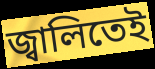
জ্বালিতেই